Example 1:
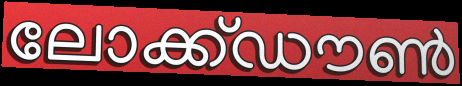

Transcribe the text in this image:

ലോക്ക്ഡൗൺ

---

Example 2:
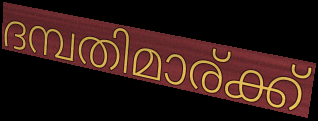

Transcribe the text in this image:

ദമ്പതിമാര്ക്ക്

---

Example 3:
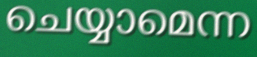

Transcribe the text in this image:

ചെയ്യാമെന്ന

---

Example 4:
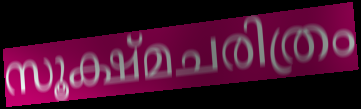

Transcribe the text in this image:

സൂക്ഷ്മചരിത്രം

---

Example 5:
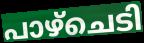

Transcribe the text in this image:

പാഴ്ചെടി